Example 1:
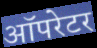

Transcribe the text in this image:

ऑपरेटर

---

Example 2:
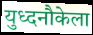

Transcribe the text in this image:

युध्दनौकेला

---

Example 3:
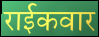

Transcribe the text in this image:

राईकवार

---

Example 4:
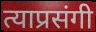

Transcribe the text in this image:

त्याप्रसंगी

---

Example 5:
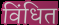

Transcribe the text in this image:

विंधित